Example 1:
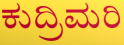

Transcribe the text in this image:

ಕುದ್ರಿಮರಿ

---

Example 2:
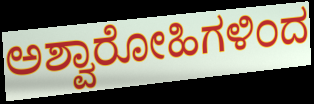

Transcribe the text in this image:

ಅಶ್ವಾರೋಹಿಗಳಿಂದ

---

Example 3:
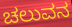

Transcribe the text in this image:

ಚಲುವನ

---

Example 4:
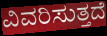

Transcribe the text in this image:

ವಿವರಿಸುತ್ತದೆ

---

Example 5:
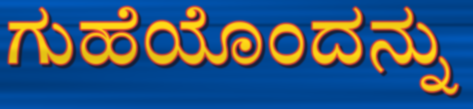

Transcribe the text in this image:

ಗುಹೆಯೊಂದನ್ನು